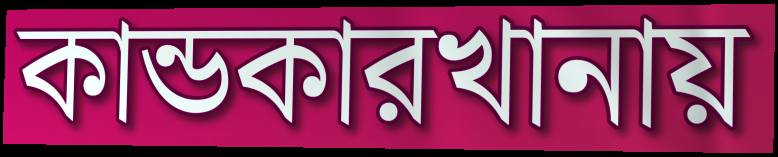
কান্ডকারখানায়